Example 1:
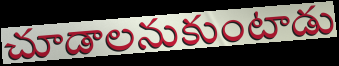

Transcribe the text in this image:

చూడాలనుకుంటాడు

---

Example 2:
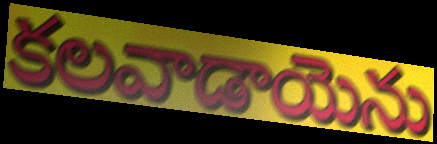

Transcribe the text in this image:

కలవాడాయెను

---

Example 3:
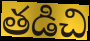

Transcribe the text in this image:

తడిచి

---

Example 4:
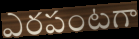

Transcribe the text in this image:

ఎరపంటగా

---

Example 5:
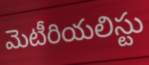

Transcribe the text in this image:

మెటీరియలిస్టు